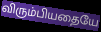
விரும்பியதையே